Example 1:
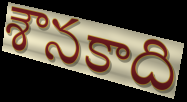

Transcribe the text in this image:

శౌనకాది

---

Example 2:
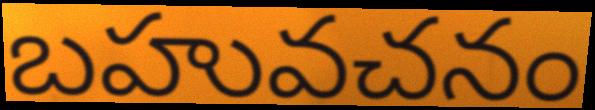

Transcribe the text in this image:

బహువచనం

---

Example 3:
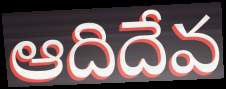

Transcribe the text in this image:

ఆదిదేవ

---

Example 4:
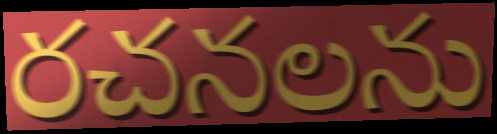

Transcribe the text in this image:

రచనలను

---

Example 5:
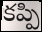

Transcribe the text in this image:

కప్పి